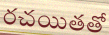
రచయితతో